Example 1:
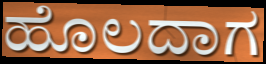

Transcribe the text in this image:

ಹೊಲದಾಗ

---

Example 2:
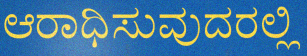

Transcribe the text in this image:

ಆರಾಧಿಸುವುದರಲ್ಲಿ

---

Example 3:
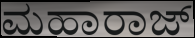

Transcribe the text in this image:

ಮಹಾರಾಜ್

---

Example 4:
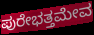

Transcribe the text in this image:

ಪುರೇಭತ್ತಮೇವ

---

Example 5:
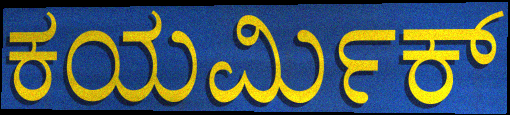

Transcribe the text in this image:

ಕಯರ್ಮಿಕ್